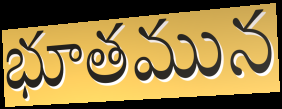
భూతమున